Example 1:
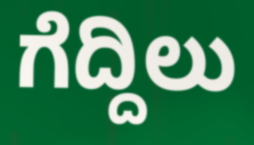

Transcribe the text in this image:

ಗೆದ್ದಿಲು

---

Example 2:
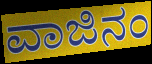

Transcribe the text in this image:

ವಾಜಿನಂ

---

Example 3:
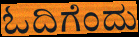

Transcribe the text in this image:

ಓದಿಗೆಂದು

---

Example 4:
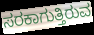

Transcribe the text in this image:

ಸರಕಾಗುತ್ತಿರುವ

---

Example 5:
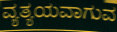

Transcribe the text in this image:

ವ್ಯತ್ಯಯವಾಗುವ